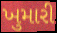
ખુમારી